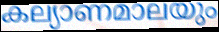
കല്യാണമാലയും